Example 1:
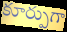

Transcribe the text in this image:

కూర్పుగా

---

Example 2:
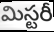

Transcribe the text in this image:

మిస్టరీ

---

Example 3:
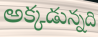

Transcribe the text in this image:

అక్కడున్నది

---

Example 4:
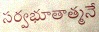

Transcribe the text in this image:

సర్వభూతాత్మనే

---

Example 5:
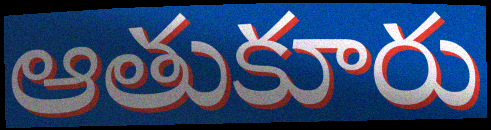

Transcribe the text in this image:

ఆతుకూరు